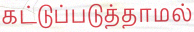
கட்டுப்படுத்தாமல்